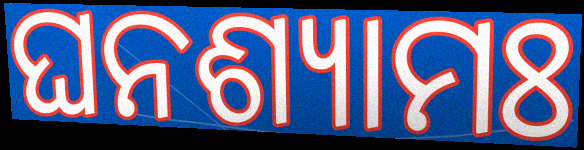
ଘନଶ୍ଯାମଃ